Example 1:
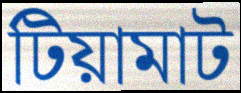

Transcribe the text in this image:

টিয়ামাট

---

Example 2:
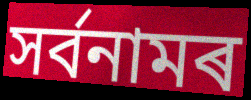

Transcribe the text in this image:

সৰ্বনামৰ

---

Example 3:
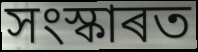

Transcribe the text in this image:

সংস্কাৰত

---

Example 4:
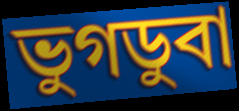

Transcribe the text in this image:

ভুগডুবা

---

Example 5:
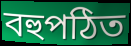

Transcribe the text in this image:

বহুপঠিত